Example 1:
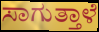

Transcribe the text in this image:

ಸಾಗುತ್ತಾಳೆ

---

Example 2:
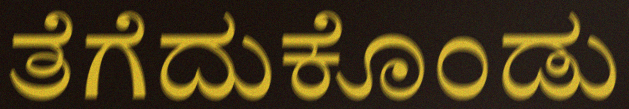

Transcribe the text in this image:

ತೆಗೆದುಕೊಂಡು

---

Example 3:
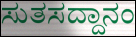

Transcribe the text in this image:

ಸುತಸದ್ದಾನಂ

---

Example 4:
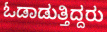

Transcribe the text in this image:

ಓಡಾಡುತ್ತಿದ್ದರು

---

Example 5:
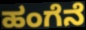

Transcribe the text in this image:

ಹಂಗೆನೆ